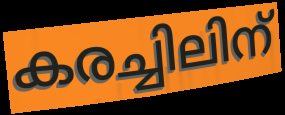
കരച്ചിലിന്